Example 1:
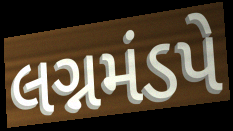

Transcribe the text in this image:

લગ્નમંડપે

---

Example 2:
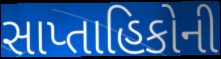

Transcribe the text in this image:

સાપ્તાહિકોની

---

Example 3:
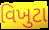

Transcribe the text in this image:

વિખુટા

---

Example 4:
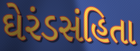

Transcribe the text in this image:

ઘેરંડસંહિતા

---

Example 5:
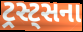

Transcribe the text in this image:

ટ્રસ્ટ્સના